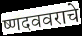
ष्णदववराचे